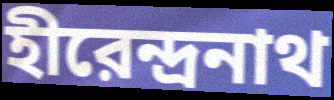
হীরেন্দ্রনাথ